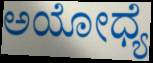
ಅಯೋಧ್ಯೆ